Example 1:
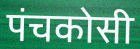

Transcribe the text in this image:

पंचकोसी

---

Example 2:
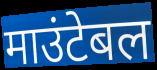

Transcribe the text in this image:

माउंटेबल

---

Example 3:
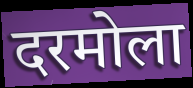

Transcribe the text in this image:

दरमोला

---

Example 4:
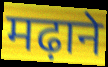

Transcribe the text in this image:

मढ़ाने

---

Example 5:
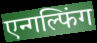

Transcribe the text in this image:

एन्गल्फिंग